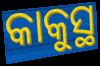
କାକୁସ୍ଥ